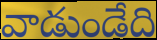
వాడుండేది